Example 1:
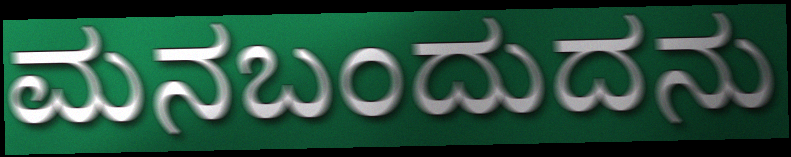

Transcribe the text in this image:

ಮನಬಂದುದನು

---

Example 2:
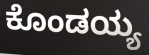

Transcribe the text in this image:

ಕೊಂಡಯ್ಯ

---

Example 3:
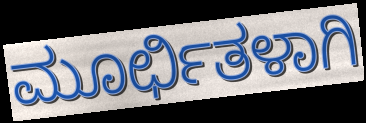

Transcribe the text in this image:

ಮೂರ್ಛಿತಳಾಗಿ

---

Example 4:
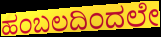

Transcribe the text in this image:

ಹಂಬಲದಿಂದಲೇ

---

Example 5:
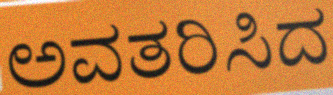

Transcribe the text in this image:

ಅವತರಿಸಿದ